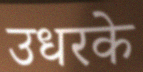
उधरके